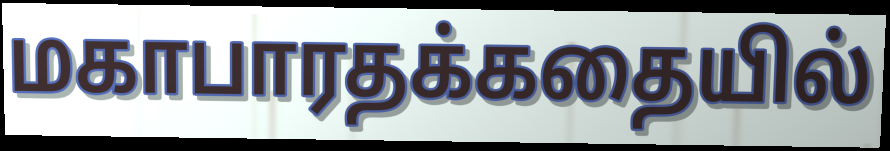
மகாபாரதக்கதையில்